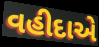
વહીદાએ